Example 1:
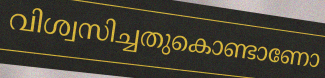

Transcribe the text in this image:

വിശ്വസിച്ചതുകൊണ്ടാണോ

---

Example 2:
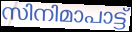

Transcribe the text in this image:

സിനിമാപാട്ട്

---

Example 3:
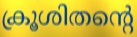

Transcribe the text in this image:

ക്രൂശിതന്റെ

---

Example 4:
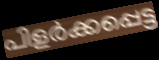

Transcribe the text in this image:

പിളർക്കപ്പെട്ട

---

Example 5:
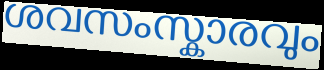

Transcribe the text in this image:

ശവസംസ്കാരവും